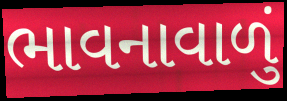
ભાવનાવાળું